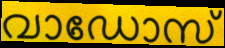
വാഡോസ്